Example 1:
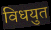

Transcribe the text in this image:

विधयुत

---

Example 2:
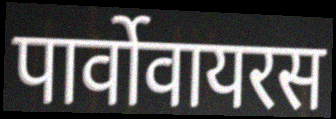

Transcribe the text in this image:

पार्वोवायरस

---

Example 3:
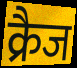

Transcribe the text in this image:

क्रैज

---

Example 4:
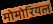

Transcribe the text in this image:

मोमोरियल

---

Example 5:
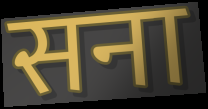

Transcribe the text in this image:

सना